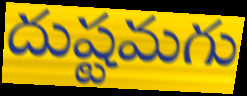
దుష్టమగు